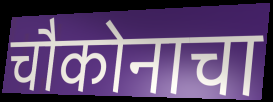
चौकोनाचा